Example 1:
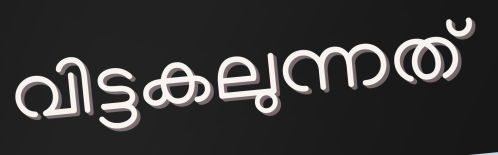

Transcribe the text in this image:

വിട്ടകലുന്നത്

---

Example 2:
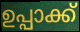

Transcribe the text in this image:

ഉപ്പാക്ക്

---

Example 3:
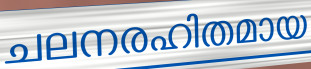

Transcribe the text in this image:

ചലനരഹിതമായ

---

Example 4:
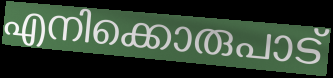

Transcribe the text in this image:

എനിക്കൊരുപാട്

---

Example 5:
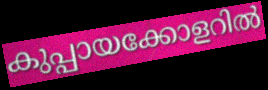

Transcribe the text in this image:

കുപ്പായക്കോളറിൽ